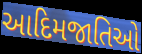
આદિમજાતિઓ